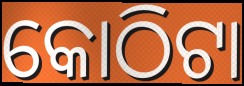
କୋଠିଟା